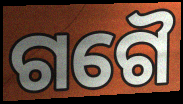
ଗଗୈ